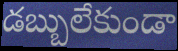
డబ్బులేకుండా